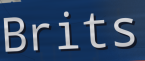
Brits